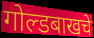
गोल्डबाखचे